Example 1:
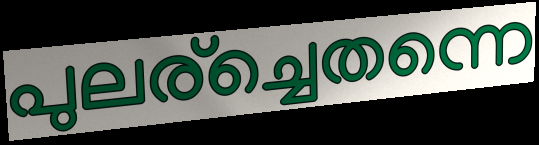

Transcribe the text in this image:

പുലര്ച്ചെതന്നെ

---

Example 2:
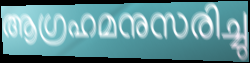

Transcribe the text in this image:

ആഗ്രഹമനുസരിച്ചു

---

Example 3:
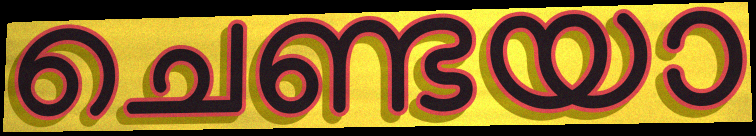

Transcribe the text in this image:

ചെണ്ടയാ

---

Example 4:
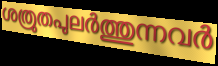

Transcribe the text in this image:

ശത്രുതപുലർത്തുന്നവർ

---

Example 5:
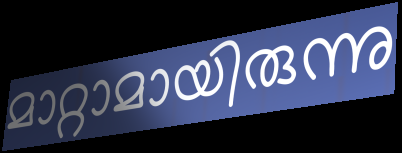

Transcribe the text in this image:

മാറ്റാമായിരുന്നു